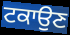
ਟਕਾਉਣ